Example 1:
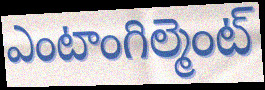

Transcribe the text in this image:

ఎంటాంగిల్మెంట్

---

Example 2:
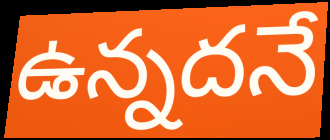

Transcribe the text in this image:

ఉన్నదనే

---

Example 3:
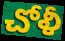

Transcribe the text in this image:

చోళీ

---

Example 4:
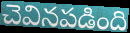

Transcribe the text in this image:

చెవినపడింది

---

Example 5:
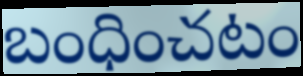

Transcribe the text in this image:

బంధించటం